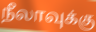
நீலாவுக்கு